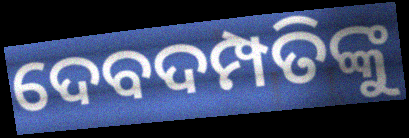
ଦେବଦମ୍ପତିଙ୍କୁ